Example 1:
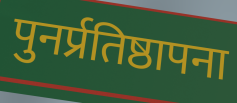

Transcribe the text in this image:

पुनर्प्रतिष्ठापना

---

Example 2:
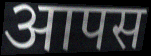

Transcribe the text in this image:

आपस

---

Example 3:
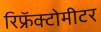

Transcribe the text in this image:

रिफ्रॅक्टोमीटर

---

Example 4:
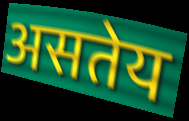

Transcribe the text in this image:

असतेय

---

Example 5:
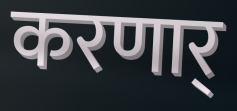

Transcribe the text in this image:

करणार्